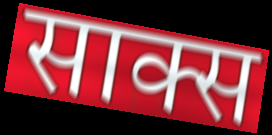
साक्स